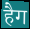
हैग